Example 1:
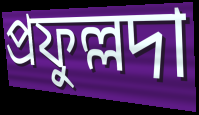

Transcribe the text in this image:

প্রফুল্লদা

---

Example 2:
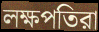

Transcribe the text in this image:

লক্ষপতিরা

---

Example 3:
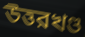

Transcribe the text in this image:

উত্তরখণ্ড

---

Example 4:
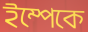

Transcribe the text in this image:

ইম্পেকে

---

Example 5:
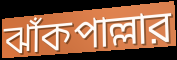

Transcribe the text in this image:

ঝাঁকপাল্লার